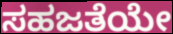
ಸಹಜತೆಯೇ